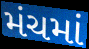
મંચમાં